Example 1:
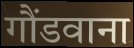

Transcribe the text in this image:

गौंडवाना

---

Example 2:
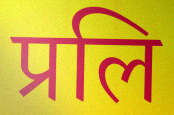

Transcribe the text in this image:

प्रलि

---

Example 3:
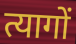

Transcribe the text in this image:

त्यागों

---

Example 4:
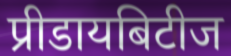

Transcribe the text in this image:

प्रीडायबिटीज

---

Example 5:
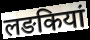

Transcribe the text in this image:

लङकियां